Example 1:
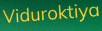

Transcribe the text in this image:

Viduroktiya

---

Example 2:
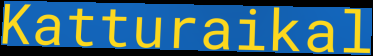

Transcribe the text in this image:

Katturaikal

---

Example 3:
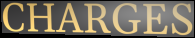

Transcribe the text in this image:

CHARGES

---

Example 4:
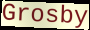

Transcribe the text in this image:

Grosby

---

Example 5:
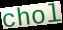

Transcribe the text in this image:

chol